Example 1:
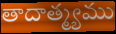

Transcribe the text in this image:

తాదాత్మ్యము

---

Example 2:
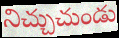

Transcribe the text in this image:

నిచ్చుచుండు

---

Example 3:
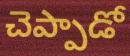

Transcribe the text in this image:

చెప్పాడో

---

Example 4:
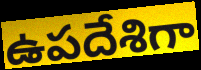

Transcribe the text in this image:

ఉపదేశిగా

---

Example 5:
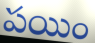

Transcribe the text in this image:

పయిం